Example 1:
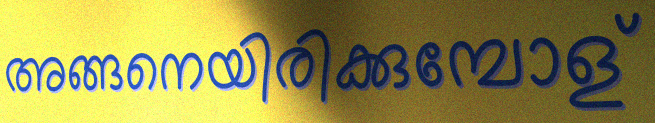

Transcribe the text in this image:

അങ്ങനെയിരിക്കുമ്പോള്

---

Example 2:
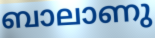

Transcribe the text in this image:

ബാലാണു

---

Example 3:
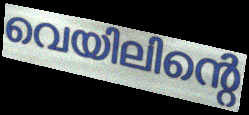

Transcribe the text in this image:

വെയിലിന്റെ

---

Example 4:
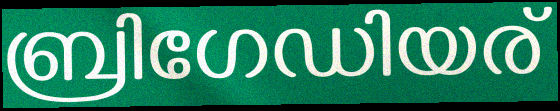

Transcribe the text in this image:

ബ്രിഗേഡിയര്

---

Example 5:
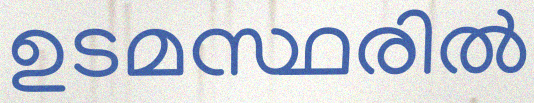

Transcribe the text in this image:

ഉടമസ്ഥരിൽ